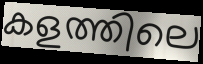
കളത്തിലെ